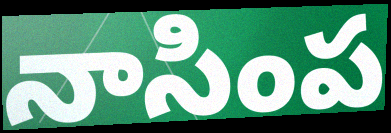
నాసింప